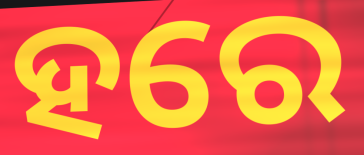
ହରେ